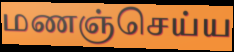
மணஞ்செய்ய